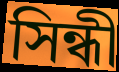
সিন্ধী